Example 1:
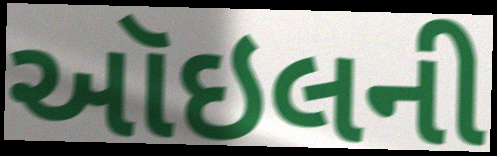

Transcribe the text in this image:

ઑઇલની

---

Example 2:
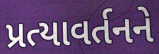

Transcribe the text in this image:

પ્રત્યાવર્તનને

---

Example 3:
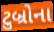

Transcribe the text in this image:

ટુબ્રોના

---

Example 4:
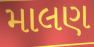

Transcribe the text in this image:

માલણ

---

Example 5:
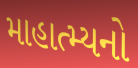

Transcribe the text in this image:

માહાત્મ્યનો